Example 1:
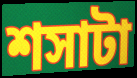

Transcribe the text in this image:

শসাটা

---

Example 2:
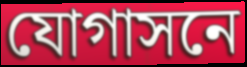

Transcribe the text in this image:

যোগাসনে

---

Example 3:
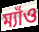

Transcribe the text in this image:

ম্যাঁও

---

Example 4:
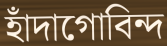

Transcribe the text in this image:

হাঁদাগোবিন্দ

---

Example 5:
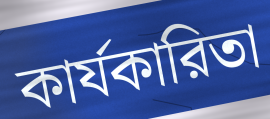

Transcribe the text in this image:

কার্যকারিতা